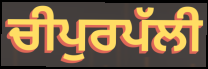
ਚੀਪੁਰਪੱਲੀ